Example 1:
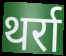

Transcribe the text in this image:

थर्रा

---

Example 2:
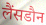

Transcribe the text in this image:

लैंसडौन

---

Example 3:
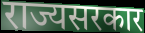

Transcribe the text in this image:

राज्यसरकार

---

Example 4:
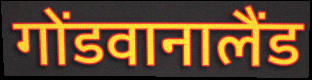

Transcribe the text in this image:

गोंडवानालैंड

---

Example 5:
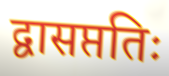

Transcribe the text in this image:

द्वासप्ततिः